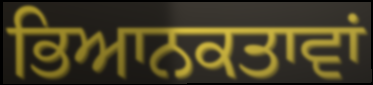
ਭਿਆਨਕਤਾਵਾਂ